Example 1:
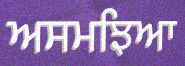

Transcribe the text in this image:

ਅਸਮਝਿਆ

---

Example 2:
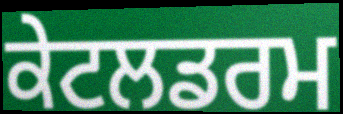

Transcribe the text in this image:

ਕੇਟਲਡਰਮ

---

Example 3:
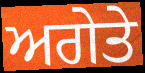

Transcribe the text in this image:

ਅਗੇਤੇ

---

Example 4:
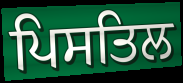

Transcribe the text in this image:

ਪਿਸਤਿਲ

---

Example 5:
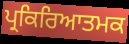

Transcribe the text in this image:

ਪ੍ਰਕਿਰਿਆਤਮਕ